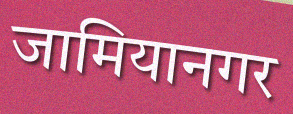
जामियानगर